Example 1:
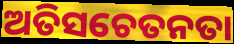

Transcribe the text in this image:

ଅତିସଚେତନତା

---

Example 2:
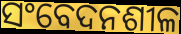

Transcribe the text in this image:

ସଂବେଦନଶୀଳ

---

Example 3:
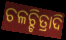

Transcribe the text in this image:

ଚଳଚ୍ଚିତ୍ରାଦି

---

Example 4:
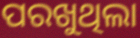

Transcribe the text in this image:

ପରଖୁଥିଲା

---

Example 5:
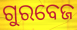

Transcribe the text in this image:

ଗୁରବେଜ